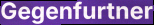
Gegenfurtner